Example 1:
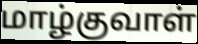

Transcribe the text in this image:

மாழ்குவாள்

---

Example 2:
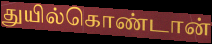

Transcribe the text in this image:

துயில்கொண்டான்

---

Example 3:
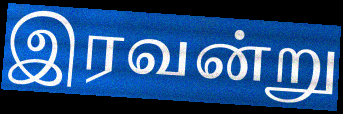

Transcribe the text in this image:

இரவன்று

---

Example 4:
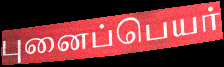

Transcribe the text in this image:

புனைப்பெயர்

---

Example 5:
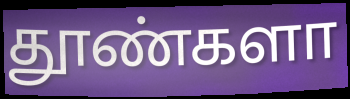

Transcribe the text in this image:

தூண்களா